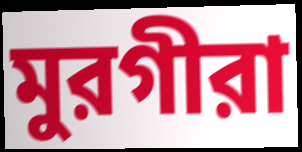
মুরগীরা